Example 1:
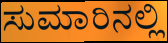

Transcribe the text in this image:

ಸುಮಾರಿನಲ್ಲಿ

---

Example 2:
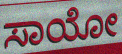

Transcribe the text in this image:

ಸಾಯೋ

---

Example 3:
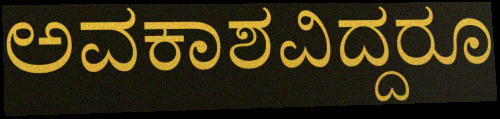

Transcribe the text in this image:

ಅವಕಾಶವಿದ್ದರೂ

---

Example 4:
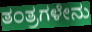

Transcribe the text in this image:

ತಂತ್ರಗಳೇನು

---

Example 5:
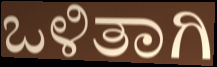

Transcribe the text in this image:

ಒಳಿತಾಗಿ